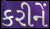
કરીનેં